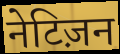
नेटिज़न